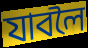
যাবলৈ